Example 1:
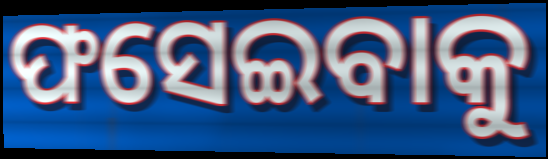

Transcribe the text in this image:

ଫସେଇବାକୁ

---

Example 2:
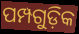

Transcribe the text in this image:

ପମ୍ପଗୁଡ଼ିକ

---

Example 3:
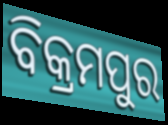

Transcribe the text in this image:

ବିକ୍ରମପୁର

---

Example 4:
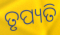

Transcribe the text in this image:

ତୃପ୍ୟତି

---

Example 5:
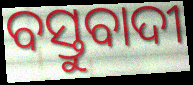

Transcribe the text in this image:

ବସ୍ତୁବାଦୀ